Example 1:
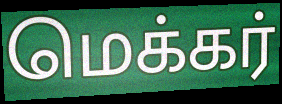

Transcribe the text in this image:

மெக்கர்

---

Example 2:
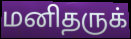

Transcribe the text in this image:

மனிதருக்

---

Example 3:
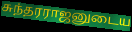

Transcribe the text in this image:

சுந்தரராஜனுடைய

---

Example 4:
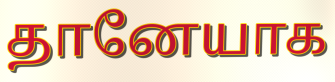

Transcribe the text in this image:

தானேயாக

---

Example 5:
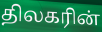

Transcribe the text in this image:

திலகரின்